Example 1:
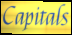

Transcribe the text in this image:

Capitals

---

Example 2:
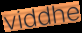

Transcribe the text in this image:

viddhe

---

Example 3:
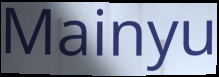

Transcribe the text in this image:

Mainyu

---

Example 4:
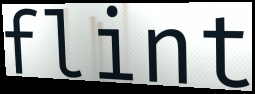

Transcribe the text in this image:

flint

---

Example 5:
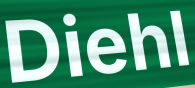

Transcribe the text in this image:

Diehl